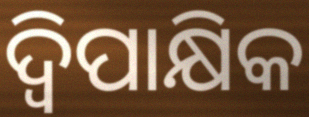
ଦ୍ୱିପାକ୍ଷିକ